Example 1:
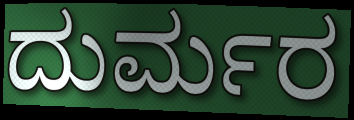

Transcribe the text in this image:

ದುರ್ಮರ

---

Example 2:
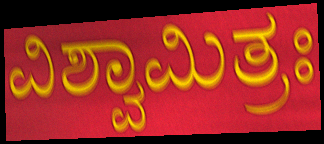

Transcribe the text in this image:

ವಿಶ್ವಾಮಿತ್ರಃ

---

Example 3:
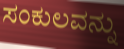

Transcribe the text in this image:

ಸಂಕುಲವನ್ನು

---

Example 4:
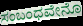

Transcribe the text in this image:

ಸಂಬಂಧವೇನೊ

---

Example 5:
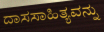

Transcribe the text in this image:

ದಾಸಸಾಹಿತ್ಯವನ್ನು